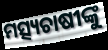
ମତ୍ସ୍ୟଚାଷୀଙ୍କୁ